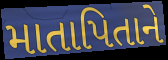
માતાપિતાને